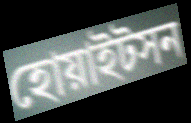
হোয়াইটসন